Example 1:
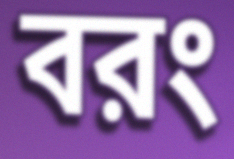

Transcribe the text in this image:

বরং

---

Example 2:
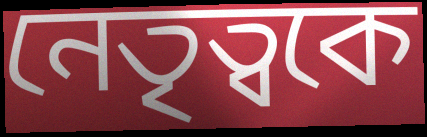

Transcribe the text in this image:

নেতৃত্বকে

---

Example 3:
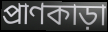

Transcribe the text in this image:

প্রাণকাড়া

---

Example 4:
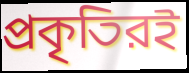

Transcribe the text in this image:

প্রকৃতিরই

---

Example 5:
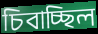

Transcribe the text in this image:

চিবাচ্ছিল